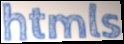
htmls